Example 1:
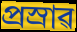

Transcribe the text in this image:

প্ৰস্ৰাৱ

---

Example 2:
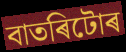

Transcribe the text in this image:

বাতৰিটোৰ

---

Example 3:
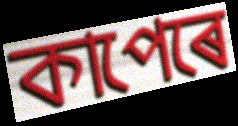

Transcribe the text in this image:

কাপেৰে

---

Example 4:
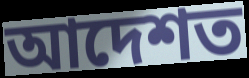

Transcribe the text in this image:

আদেশত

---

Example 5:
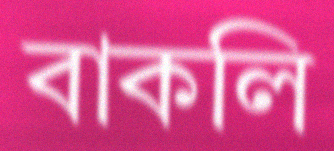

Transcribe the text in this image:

বাকলি